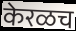
केरळच